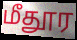
மீதூர